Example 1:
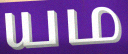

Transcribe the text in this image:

யம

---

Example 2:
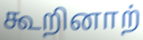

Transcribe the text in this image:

கூறினாற்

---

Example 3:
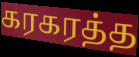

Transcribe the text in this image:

கரகரத்த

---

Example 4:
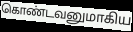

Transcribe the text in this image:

கொண்டவனுமாகிய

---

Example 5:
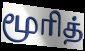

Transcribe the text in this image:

மூரித்